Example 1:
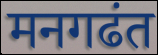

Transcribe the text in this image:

मनगढंत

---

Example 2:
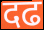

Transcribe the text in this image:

दढ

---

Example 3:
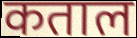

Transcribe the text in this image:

कताल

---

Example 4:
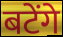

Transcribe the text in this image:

बटेंगे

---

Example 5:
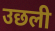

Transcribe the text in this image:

उछली